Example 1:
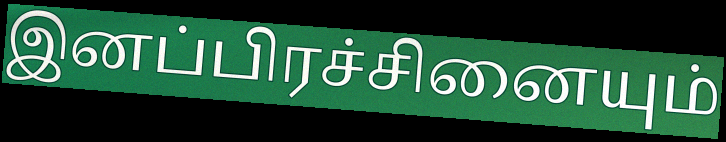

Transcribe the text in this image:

இனப்பிரச்சினையும்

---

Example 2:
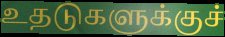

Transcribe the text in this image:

உதடுகளுக்குச்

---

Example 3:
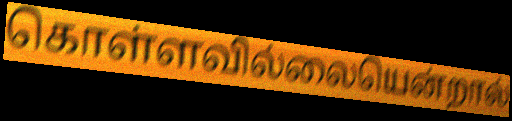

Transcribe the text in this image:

கொள்ளவில்லையென்றால்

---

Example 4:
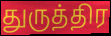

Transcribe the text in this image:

துருத்திர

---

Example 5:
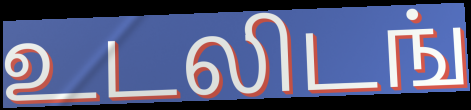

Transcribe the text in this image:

உடலிடங்